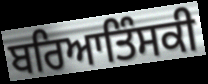
ਬਰਿਆਤਿੰਸਕੀ